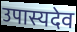
उपास्यदेव